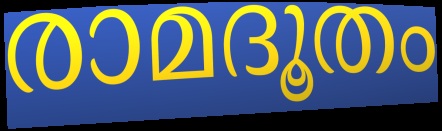
രാമദൂതം